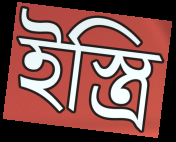
ইস্ত্রি